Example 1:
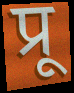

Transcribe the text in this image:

प्रू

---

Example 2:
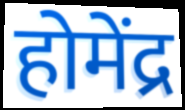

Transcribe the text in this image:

होमेंद्र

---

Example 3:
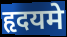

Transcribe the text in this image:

हृदयमे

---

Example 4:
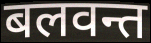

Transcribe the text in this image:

बलवन्त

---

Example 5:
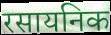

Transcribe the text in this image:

रसायनिक